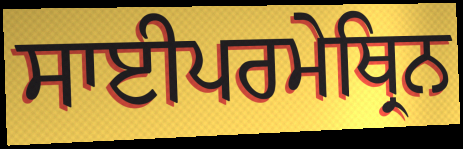
ਸਾਈਪਰਮੇਥ੍ਰਿਨ